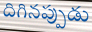
దిగినప్పుడు